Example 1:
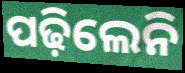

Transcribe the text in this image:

ପଢ଼ିଲେନି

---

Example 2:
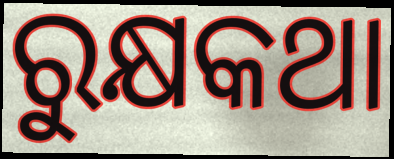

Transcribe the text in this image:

ରୁକ୍ଷକଥା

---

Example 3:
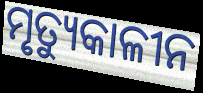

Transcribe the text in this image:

ମୃତ୍ୟୁକାଳୀନ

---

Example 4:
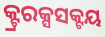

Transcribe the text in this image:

କ୍ଟ୍ରରକ୍ସସକ୍ଟୟ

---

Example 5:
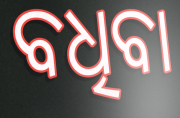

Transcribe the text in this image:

ବଧିବା